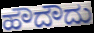
ಹೌದೌದು